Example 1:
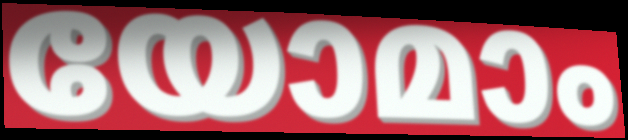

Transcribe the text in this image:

യോമാം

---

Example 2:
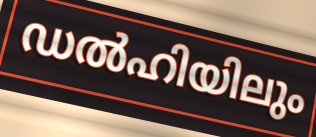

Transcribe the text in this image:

ഡൽഹിയിലും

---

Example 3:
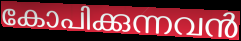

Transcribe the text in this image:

കോപിക്കുന്നവൻ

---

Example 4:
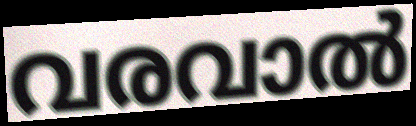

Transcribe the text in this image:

വരവാൽ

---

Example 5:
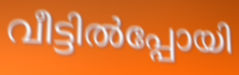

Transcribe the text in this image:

വീട്ടിൽപ്പോയി